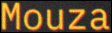
Mouza